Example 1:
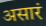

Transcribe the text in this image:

असारं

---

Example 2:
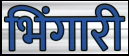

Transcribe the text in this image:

भिंगारी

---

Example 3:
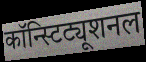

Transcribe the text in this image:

कॉन्स्टिट्यूशनल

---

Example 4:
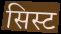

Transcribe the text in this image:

सिस्ट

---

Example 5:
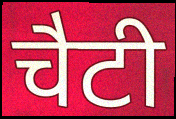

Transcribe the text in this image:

चैटी